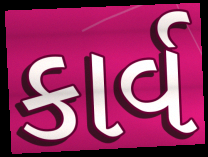
કાર્વ